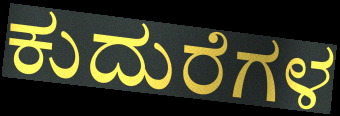
ಕುದುರೆಗಳ